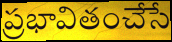
ప్రభావితంచేసే